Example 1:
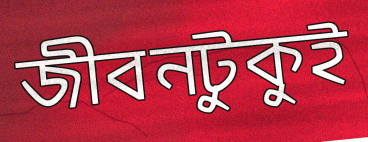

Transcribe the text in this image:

জীবনটুকুই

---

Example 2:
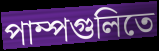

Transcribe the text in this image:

পাম্পগুলিতে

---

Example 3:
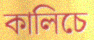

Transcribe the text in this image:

কালিচে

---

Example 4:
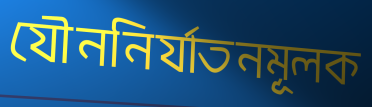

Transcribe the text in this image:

যৌননির্যাতনমূলক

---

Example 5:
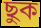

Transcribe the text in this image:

ছুক